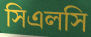
সিএলসি